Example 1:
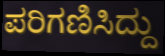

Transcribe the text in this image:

ಪರಿಗಣಿಸಿದ್ದು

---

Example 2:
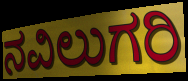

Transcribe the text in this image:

ನವಿಲುಗರಿ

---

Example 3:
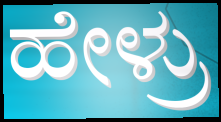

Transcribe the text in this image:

ಹೇಳ್ರು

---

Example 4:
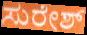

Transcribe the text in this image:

ಸುರೇಶ್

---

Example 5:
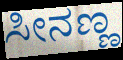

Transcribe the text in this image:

ಸೀನಣ್ಣ